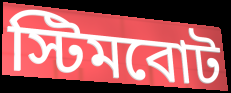
স্টিমবোট